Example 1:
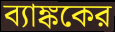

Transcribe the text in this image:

ব্যাঙ্ককের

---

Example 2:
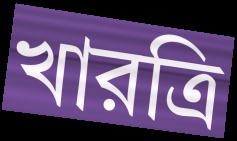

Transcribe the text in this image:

খারত্রি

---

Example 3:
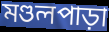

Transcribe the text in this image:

মণ্ডলপাড়া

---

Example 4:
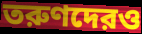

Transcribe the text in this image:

তরুণদেরও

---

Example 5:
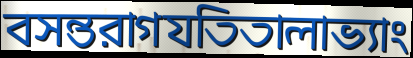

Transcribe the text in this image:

বসন্তরাগযতিতালাভ্যাং